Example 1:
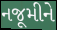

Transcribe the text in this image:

નજૂમીને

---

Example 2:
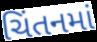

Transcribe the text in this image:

ચિંતનમાં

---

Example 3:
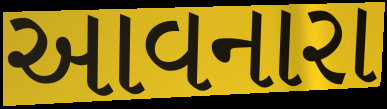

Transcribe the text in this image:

આવનારા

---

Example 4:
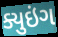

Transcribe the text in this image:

ક્યુઇંગ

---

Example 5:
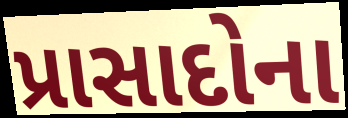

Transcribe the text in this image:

પ્રાસાદોના